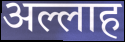
अल्लाह